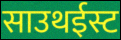
साउथईस्ट